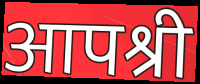
आपश्री